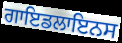
ਗਾਇਡਲਾਇਨਸ